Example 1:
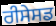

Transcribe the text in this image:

ਰੀਸੇਸਡ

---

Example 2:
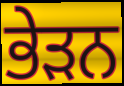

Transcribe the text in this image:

ਭੇੜਨ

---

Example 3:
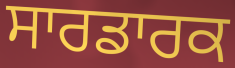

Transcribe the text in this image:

ਸਾਰਡਾਰਕ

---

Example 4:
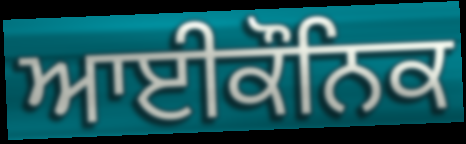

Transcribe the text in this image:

ਆਈਕੌਨਿਕ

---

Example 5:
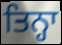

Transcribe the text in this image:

ਤਿਨ੍ਹ੍ਹਾ